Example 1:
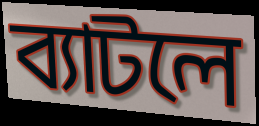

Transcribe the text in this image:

ব্যাটলে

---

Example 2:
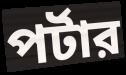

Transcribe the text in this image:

পর্টার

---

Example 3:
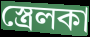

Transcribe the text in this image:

স্ত্রেলকা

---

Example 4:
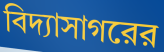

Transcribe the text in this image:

বিদ্যাসাগরের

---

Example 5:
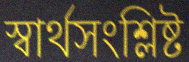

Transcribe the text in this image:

স্বার্থসংশ্লিষ্ট